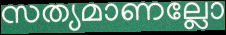
സത്യമാണല്ലോ